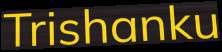
Trishanku